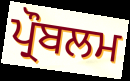
ਪ੍ਰੌਬਲਮ